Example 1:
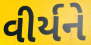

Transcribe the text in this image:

વીર્યને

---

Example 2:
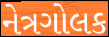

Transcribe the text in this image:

નેત્રગોલક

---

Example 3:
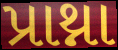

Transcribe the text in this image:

પ્રાથ્ના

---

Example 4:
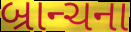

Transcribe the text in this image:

બ્રાન્ચના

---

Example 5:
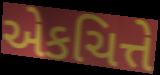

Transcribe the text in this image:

એકચિત્તે